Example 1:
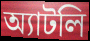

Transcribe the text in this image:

অ্যাটলি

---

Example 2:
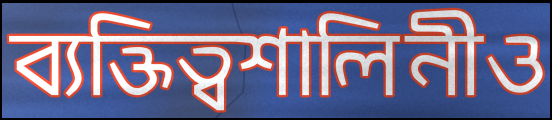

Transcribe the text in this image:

ব্যক্তিত্বশালিনীও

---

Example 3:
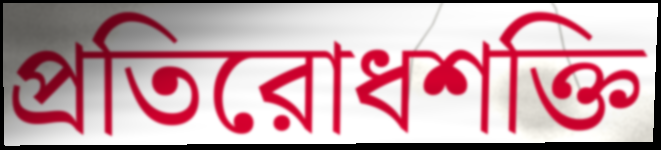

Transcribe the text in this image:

প্রতিরোধশক্তি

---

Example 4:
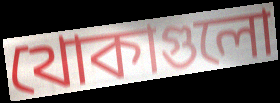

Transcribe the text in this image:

থোকাগুলো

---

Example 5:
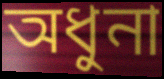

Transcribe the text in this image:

অধুনা